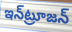
ఇన్‌ట్రూజన్